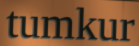
tumkur